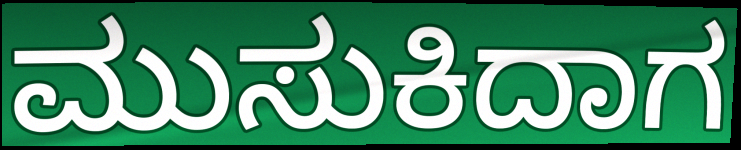
ಮುಸುಕಿದಾಗ